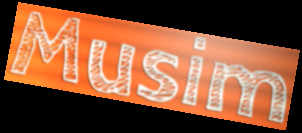
Musim